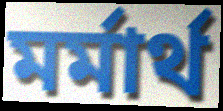
মর্মার্থ